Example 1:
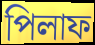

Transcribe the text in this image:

পিলাফ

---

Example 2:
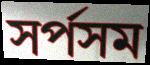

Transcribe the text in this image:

সর্পসম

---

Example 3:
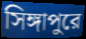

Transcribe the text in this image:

সিঙ্গাপুরে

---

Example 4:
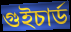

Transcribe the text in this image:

গুইচার্ড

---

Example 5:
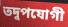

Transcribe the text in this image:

তদুপযোগী